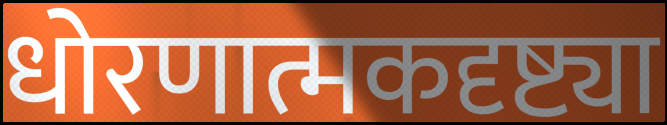
धोरणात्मकदृष्ट्या